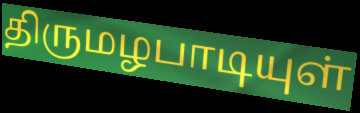
திருமழபாடியுள்